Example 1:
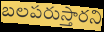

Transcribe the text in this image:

బలపరుస్తారని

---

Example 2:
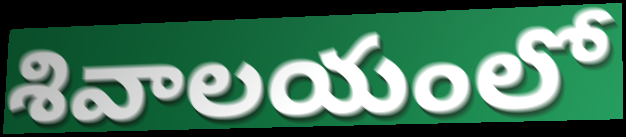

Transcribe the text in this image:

శివాలయంలో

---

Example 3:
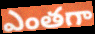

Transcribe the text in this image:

ఎంతగా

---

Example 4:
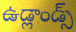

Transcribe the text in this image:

ఉడ్లాండ్స్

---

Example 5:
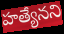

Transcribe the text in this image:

హత్యేనని